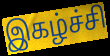
இகழ்ச்சி